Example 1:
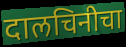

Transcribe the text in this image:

दालचिनीचा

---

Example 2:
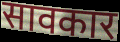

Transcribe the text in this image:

सावकार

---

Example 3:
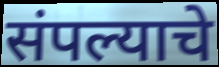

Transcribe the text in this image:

संपल्याचे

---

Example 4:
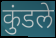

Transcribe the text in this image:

कुंडले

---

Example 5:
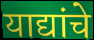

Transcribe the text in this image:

याद्यांचे